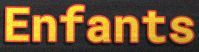
Enfants